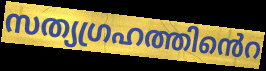
സത്യഗ്രഹത്തിൻെറ